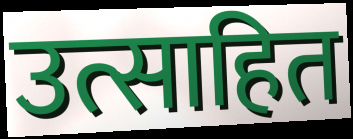
उत्साहित